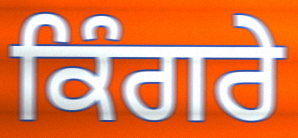
ਕਿੰਗਰੇ